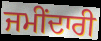
ਜਮੀਂਦਾਰੀ